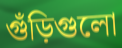
গুঁড়িগুলো